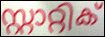
സ്റ്റാറ്റിക്